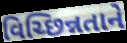
વિચ્છિન્નતાને